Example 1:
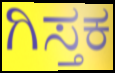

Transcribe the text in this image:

ಗಿಸ್ತಕ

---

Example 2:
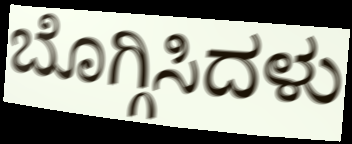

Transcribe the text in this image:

ಬೊಗ್ಗಿಸಿದಳು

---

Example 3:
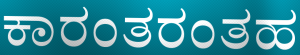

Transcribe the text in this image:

ಕಾರಂತರಂತಹ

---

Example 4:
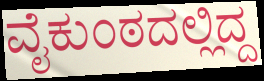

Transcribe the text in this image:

ವೈಕುಂಠದಲ್ಲಿದ್ದ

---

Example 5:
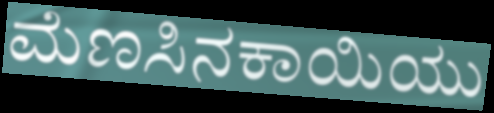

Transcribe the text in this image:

ಮೆಣಸಿನಕಾಯಿಯು